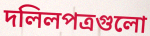
দলিলপত্রগুলো